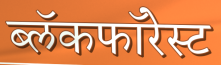
ब्लॅकफॉरेस्ट